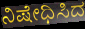
ನಿಷೇಧಿಸಿದ